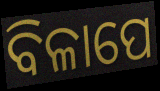
ବିଳାପେ